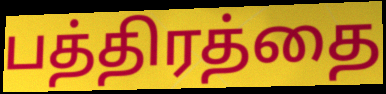
பத்திரத்தை